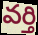
వర్తి